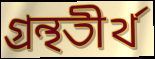
গ্রন্থতীর্থ